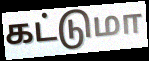
கட்டுமா